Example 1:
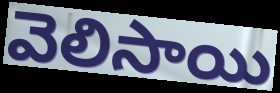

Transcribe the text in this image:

వెలిసాయి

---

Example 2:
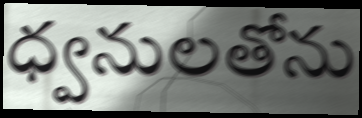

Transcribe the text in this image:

ధ్వనులతోను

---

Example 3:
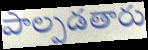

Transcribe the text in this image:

పాల్పడతారు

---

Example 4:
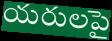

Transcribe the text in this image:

యరులపై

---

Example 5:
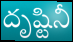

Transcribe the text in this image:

దృష్టినీ